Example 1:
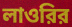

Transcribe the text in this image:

লাওরির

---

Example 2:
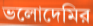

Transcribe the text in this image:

ভলোদেমির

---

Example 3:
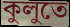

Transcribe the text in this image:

কুলুতে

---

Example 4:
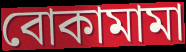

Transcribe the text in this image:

বোকামামা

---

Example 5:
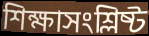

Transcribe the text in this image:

শিক্ষাসংশ্লিষ্ট